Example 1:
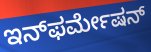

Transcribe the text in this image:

ಇನ್‌ಫರ್ಮೇಷನ್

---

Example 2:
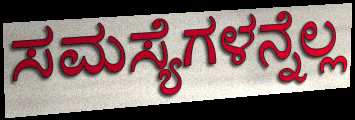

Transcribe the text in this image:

ಸಮಸ್ಯೆಗಳನ್ನೆಲ್ಲ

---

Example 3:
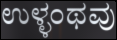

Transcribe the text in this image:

ಉಳ್ಳಂಥವು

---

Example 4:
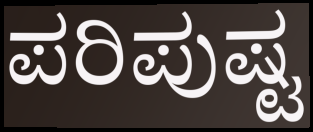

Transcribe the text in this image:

ಪರಿಪುಷ್ಟ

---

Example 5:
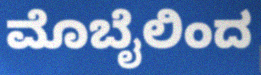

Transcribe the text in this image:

ಮೊಬೈಲಿಂದ